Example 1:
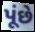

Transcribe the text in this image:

પૂંછે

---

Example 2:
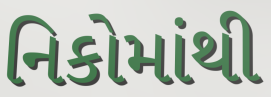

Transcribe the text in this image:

નિકોમાંથી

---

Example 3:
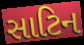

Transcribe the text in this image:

સાટિન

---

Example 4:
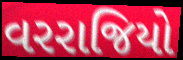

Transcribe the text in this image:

વરરાજિયો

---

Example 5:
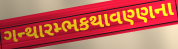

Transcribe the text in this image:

ગન્થારમ્ભકથાવણ્ણના